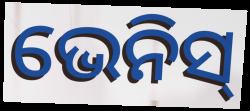
ଭେନିସ୍